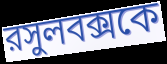
রসুলবক্সকে